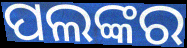
ପଲଙ୍କର